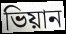
ভিয়ান